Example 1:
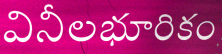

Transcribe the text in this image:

వినీలభూరికం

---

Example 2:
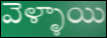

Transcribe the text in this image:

వెళ్ళాయి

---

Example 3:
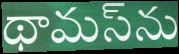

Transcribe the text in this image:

థామస్‌ను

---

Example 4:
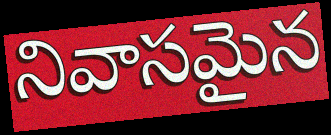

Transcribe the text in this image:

నివాసమైన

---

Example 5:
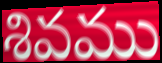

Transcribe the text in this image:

శివము